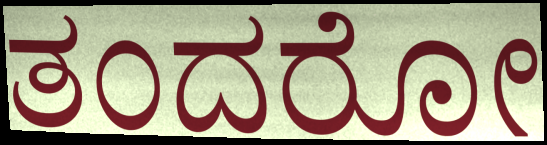
ತಂದರೋ